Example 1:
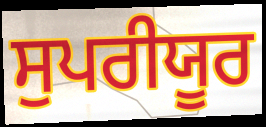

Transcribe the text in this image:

ਸੁਪਰੀਯੂਰ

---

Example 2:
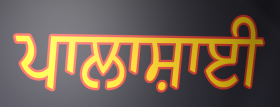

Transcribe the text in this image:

ਪਾਲਾਸ਼ਾਈ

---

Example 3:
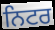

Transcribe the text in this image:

ਨਿਟਰ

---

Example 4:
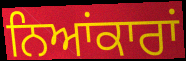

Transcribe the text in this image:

ਨਿਆਂਕਾਰਾਂ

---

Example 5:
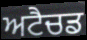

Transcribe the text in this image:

ਅਟੈਚਡ